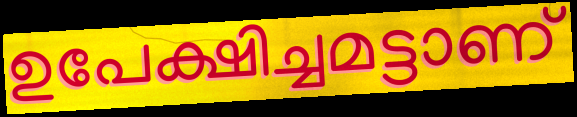
ഉപേക്ഷിച്ചമട്ടാണ്